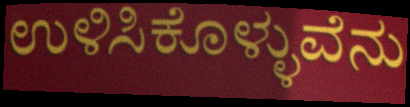
ಉಳಿಸಿಕೊಳ್ಳುವೆನು